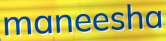
maneesha